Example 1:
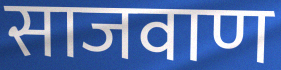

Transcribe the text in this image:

साजवाण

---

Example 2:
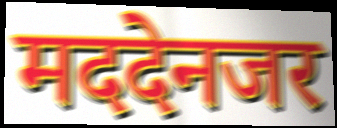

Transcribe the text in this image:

मददेनजर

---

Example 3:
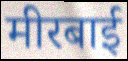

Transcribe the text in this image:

मीरबाई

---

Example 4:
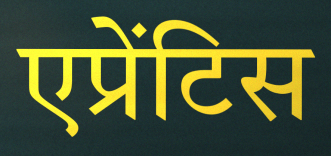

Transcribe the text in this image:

एप्रेंटिस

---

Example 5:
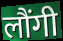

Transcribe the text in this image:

लौंगी